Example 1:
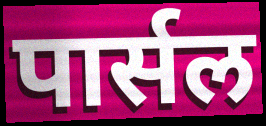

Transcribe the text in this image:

पार्सल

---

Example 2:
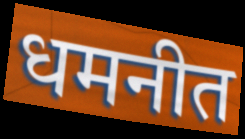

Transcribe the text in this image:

धमनीत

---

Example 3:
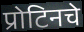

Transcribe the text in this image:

प्रोटिनचे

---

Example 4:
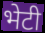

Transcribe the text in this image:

भेटी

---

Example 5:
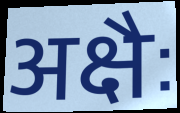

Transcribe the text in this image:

अक्षैः